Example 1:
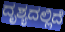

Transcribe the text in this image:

ದೃಶ್ಯದಲ್ಲಿದೆ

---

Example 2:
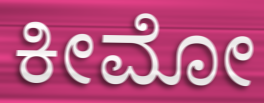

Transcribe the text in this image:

ಕೀಮೋ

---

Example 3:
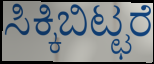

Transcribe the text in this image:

ಸಿಕ್ಕಿಬಿಟ್ಟರೆ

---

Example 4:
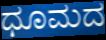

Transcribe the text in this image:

ಧೂಮದ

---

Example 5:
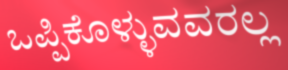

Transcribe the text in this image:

ಒಪ್ಪಿಕೊಳ್ಳುವವರಲ್ಲ